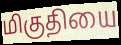
மிகுதியை